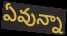
ఏవున్నా